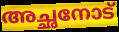
അച്ഛനോട്